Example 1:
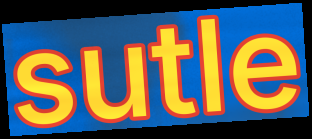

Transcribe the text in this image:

sutle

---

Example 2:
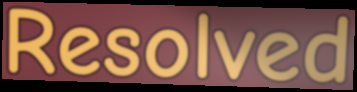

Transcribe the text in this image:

Resolved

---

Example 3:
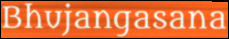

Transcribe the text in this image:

Bhujangasana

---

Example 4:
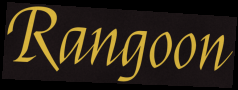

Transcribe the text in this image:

Rangoon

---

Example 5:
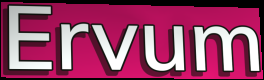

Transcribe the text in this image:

Ervum